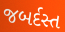
જબર્દસ્ત